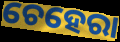
ଚେହେରା